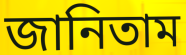
জানিতাম